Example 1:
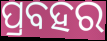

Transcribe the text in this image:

ପ୍ରବହର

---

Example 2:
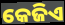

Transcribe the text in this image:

କେଜିଏ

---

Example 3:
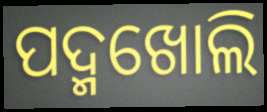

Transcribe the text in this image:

ପଦ୍ମଖୋଲି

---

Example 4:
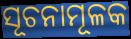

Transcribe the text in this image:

ସୂଚନାମୂଳକ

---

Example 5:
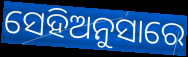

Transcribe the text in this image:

ସେହିଅନୁସାରେ